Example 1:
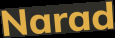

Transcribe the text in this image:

Narad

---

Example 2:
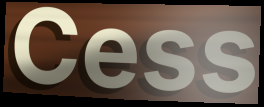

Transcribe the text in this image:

Cess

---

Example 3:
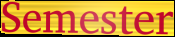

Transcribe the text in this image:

Semester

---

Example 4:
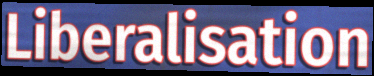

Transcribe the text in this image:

Liberalisation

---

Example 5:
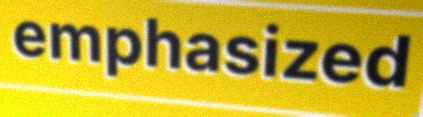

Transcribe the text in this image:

emphasized